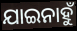
ଯାଇନାହୁଁ